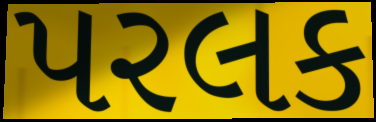
પરલક